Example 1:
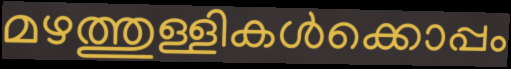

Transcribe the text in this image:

മഴത്തുള്ളികൾക്കൊപ്പം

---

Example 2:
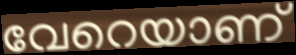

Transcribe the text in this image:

വേറെയാണ്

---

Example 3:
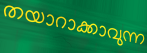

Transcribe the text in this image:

തയാറാക്കാവുന്ന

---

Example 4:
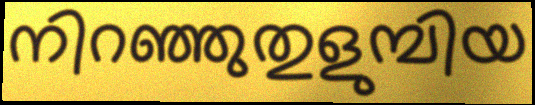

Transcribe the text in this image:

നിറഞ്ഞുതുളുമ്പിയ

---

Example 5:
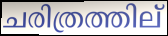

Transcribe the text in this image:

ചരിത്രത്തില്